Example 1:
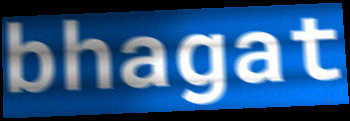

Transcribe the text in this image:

bhagat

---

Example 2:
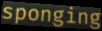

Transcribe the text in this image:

sponging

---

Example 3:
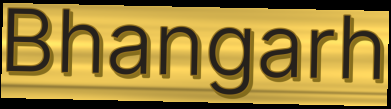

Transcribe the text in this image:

Bhangarh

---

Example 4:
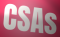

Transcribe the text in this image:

CSAs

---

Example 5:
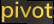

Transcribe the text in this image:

pivot